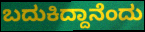
ಬದುಕಿದ್ದಾನೆಂದು